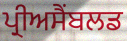
ਪ੍ਰੀਅਸੈਂਬਲਡ